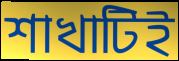
শাখাটিই